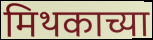
मिथकाच्या